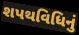
શપથવિધિનું